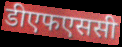
डीएफएससी